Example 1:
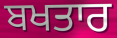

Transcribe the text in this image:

ਬਖਤਾਰ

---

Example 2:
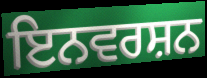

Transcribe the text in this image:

ਇਨਵਰਸ਼ਨ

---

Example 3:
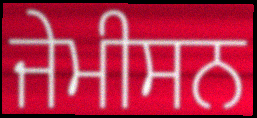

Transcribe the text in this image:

ਜੇਮੀਸਨ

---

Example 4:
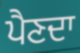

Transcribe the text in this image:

ਪੈਣਦਾ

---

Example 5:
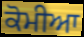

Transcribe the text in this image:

ਕੋਮੀਆ